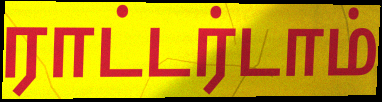
ராட்டர்டாம்